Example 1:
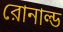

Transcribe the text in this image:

রোনাল্ড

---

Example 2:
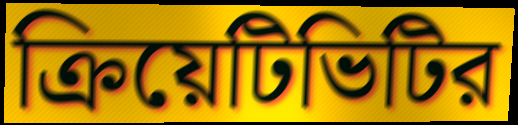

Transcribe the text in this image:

ক্রিয়েটিভিটির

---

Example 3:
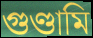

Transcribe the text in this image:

গুণ্ডামি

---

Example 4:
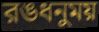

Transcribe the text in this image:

রঙধনুময়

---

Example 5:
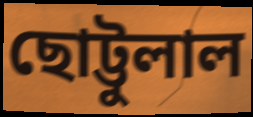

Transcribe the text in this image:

ছোট্টুলাল